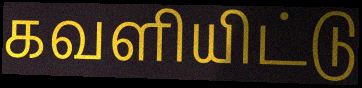
கவளியிட்டு